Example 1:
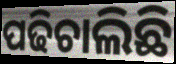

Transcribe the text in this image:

ପଢିଚାଲିଛି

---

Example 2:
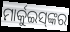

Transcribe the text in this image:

ମାର୍କୁଇସ୍‍ଙ୍କର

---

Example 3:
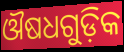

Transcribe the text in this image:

ଔଷଧଗୁଡ଼ିକ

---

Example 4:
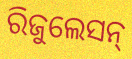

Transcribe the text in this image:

ରିଜୁଲେସନ୍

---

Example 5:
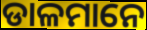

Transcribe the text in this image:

ଡାଳମାନେ